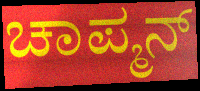
ಚಾಪ್ಮನ್